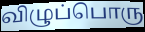
விழுப்பொரு